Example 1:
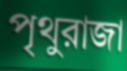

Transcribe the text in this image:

পৃথুরাজা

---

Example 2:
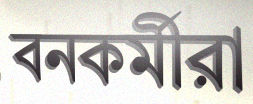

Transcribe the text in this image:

বনকর্মীরা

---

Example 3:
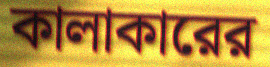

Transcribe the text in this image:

কালাকারের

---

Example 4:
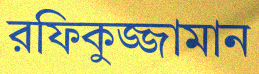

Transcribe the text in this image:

রফিকুজ্জামান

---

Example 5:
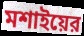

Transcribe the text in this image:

মশাইয়ের